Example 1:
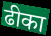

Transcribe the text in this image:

ढीका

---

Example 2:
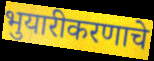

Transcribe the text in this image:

भुयारीकरणाचे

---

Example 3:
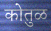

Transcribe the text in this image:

कोतुळ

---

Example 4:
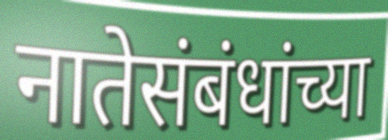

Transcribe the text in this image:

नातेसंबंधांच्या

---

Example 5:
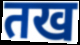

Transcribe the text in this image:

तख